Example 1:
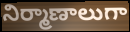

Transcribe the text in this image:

నిర్మాణాలుగా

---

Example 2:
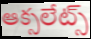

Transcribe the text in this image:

ఆక్సలేట్స్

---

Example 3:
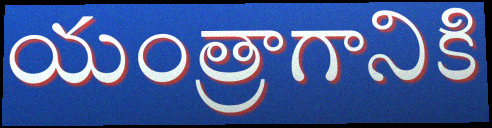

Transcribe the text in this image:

యంత్రాగానికి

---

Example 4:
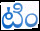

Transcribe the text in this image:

టిం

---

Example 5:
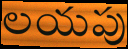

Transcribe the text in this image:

లయపు